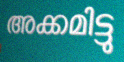
അക്കമിട്ടു